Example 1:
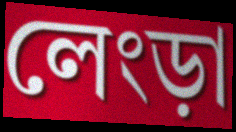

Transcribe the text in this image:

লেংড়া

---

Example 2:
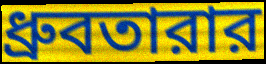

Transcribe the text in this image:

ধ্রুবতারার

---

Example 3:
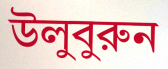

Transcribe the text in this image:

উলুবুরুন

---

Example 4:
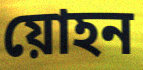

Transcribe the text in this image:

য়োহন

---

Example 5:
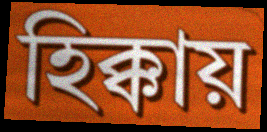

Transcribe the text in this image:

হিক্কায়